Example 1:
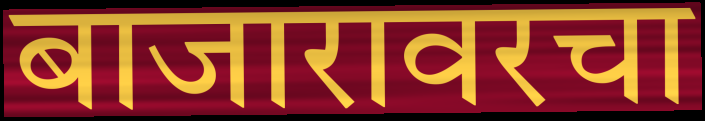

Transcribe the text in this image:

बाजारावरचा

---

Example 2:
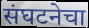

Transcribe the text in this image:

संघटनेचा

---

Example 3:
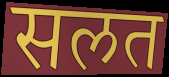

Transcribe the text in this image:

सलत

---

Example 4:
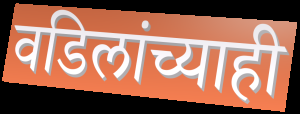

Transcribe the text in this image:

वडिलांच्याही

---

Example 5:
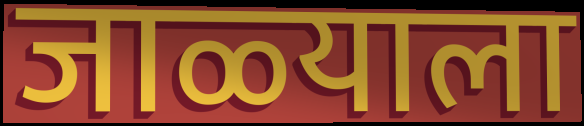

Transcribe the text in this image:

जाळ्याला